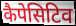
कैपेसिटिव